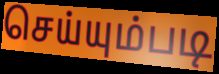
செய்யும்படி